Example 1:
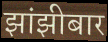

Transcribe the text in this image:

झांझीबार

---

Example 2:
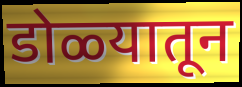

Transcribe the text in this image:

डोळ्यातून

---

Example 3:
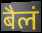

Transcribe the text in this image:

बैलं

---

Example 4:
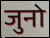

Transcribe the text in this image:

जुनो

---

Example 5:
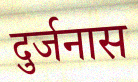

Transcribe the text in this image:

दुर्जनास